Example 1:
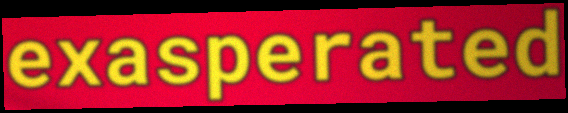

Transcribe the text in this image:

exasperated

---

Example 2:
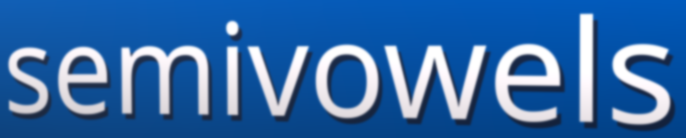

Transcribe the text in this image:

semivowels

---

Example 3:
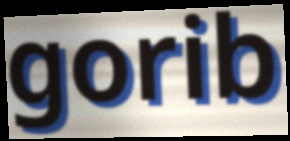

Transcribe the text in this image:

gorib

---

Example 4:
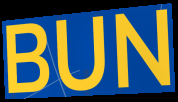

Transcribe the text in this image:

BUN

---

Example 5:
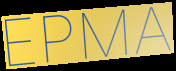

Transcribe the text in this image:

EPMA